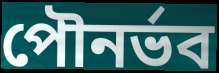
পৌনর্ভব